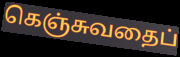
கெஞ்சுவதைப்